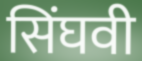
सिंघवी